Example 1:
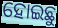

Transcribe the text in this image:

ହୋଇଛୁ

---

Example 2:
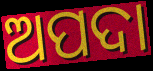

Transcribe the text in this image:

ଅପଦା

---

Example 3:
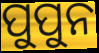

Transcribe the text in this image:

ପୁପୁନ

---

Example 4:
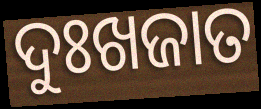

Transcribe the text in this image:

ଦୁଃଖଜାତ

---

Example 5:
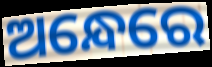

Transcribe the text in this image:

ଅନ୍ଧେରେ